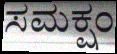
ಸಮಕ್ಷಂ